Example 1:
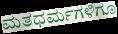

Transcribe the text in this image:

ಮತಧರ್ಮಗಳಿಗೂ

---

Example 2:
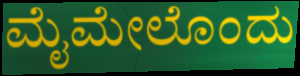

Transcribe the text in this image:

ಮೈಮೇಲೊಂದು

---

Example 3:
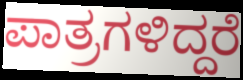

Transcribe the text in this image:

ಪಾತ್ರಗಳಿದ್ದರೆ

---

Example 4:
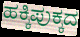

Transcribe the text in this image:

ಹಕ್ಕಿಪುಕ್ಕದ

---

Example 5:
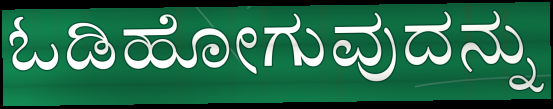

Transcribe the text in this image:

ಓಡಿಹೋಗುವುದನ್ನು